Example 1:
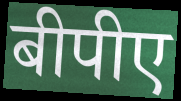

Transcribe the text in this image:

बीपीए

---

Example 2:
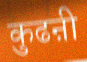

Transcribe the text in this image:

कुढऩी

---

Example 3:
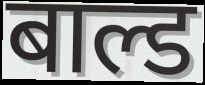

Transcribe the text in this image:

बाल्ड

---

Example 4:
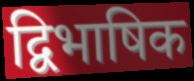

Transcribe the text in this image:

द्विभाषिक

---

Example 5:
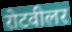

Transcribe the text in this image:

रोटवीलर